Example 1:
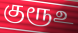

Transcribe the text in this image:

குரூஉ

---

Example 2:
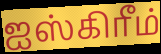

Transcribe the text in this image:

ஐஸ்கிரீம்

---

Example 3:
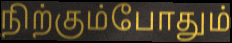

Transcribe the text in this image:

நிற்கும்போதும்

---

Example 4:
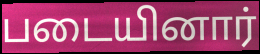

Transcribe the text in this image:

படையினார்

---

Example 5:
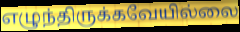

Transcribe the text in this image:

எழுந்திருக்கவேயில்லை